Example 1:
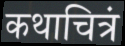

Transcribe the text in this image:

कथाचित्रं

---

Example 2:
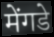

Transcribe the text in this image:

मेंगडे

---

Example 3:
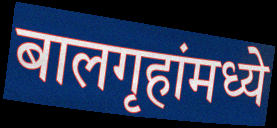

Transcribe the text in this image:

बालगृहांमध्ये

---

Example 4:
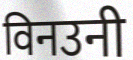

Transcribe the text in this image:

विनउनी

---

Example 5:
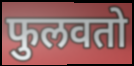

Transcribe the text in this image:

फुलवतो